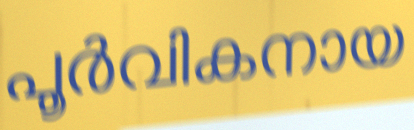
പൂർവികനായ